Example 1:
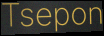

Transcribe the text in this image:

Tsepon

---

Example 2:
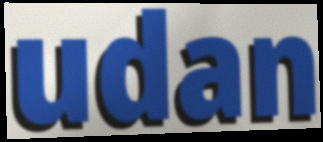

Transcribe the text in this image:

udan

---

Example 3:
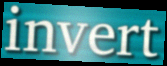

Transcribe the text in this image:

invert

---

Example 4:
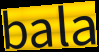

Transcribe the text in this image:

bala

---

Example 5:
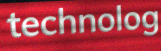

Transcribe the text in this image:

technolog